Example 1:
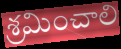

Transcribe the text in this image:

శ్రమించాలి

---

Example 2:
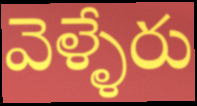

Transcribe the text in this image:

వెళ్ళేరు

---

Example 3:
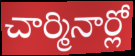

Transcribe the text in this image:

చార్మినార్లో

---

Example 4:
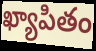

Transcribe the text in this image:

ఖ్యాపితం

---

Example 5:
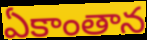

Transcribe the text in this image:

ఏకాంతాన